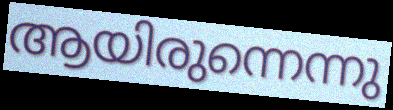
ആയിരുന്നെന്നു